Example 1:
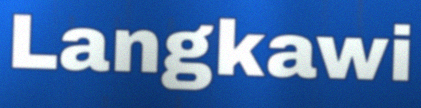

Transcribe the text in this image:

Langkawi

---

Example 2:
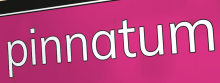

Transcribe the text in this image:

pinnatum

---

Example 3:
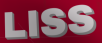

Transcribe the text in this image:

LISS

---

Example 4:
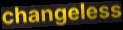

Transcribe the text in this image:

changeless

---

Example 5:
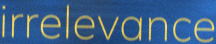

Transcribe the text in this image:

irrelevance